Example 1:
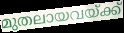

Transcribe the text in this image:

മുതലായവയ്ക്ക്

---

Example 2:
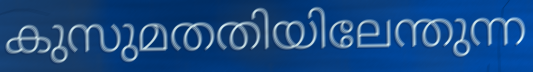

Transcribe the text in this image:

കുസുമതതിയിലേന്തുന്ന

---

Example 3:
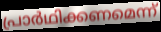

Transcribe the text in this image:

പ്രാർഥിക്കണമെന്ന്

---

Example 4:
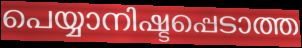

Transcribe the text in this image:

പെയ്യാനിഷ്ടപ്പെടാത്ത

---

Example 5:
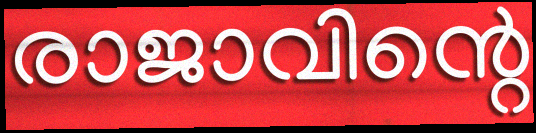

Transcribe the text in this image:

രാജാവിന്റെ